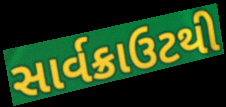
સાર્વક્રાઉટથી